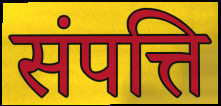
संपत्ति